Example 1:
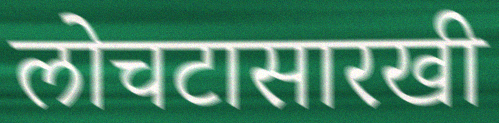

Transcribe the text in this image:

लोचटासारखी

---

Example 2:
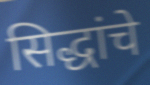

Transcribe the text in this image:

सिद्धांचे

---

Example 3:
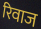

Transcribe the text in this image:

रिवाज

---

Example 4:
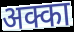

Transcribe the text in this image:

अक्का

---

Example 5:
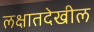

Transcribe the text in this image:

लक्षातदेखील